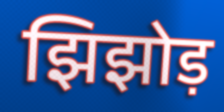
झिझोड़